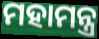
ମହାମନ୍ତ୍ର